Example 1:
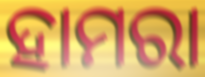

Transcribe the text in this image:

ହାମରା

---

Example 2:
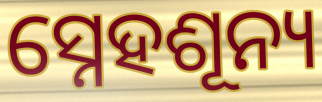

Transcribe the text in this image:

ସ୍ନେହଶୂନ୍ୟ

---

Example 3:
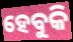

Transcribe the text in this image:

ହେବୁକି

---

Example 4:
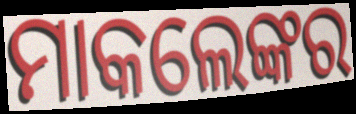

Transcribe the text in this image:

ମାକଲେଙ୍କର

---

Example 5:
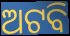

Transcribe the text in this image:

ଅଟବି